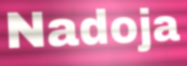
Nadoja